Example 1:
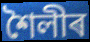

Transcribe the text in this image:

শৈলীৰ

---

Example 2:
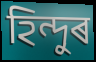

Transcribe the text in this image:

হিন্দুৰ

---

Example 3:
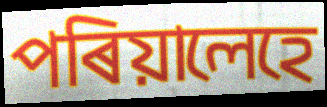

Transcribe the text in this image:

পৰিয়ালেহে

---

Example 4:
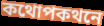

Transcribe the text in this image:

কথোপকথনে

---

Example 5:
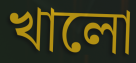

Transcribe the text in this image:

খালো